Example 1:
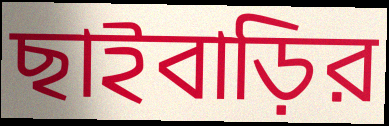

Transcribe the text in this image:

ছাইবাড়ির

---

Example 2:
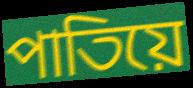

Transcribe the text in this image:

পাতিয়ে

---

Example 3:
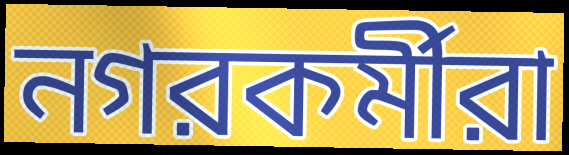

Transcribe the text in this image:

নগরকর্মীরা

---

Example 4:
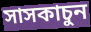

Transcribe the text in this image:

সাসকাচুন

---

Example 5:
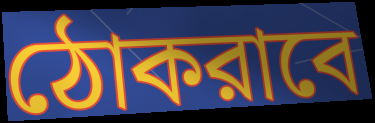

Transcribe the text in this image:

ঠোকরাবে